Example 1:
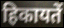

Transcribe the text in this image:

हिकायतें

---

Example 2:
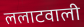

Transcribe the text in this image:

ललाटवाली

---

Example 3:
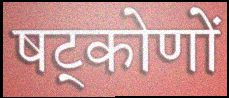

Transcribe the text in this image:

षट्कोणों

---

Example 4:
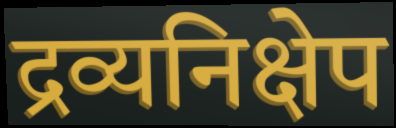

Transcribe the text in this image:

द्रव्यनिक्षेप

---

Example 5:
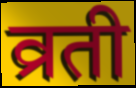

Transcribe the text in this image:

व्रती